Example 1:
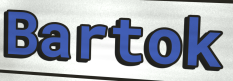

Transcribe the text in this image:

Bartok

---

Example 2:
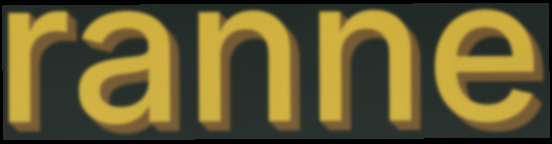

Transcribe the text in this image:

ranne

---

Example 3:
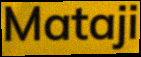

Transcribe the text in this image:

Mataji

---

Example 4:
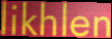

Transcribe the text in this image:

likhlen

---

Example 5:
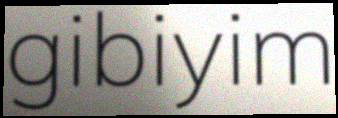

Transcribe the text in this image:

gibiyim